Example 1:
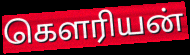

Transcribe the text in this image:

கௌரியன்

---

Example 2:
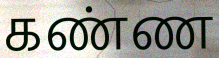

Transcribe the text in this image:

கண்ண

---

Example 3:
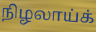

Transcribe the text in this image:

நிழலாய்க்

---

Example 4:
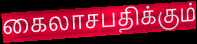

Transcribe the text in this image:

கைலாசபதிக்கும்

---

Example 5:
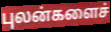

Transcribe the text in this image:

புலன்களைச்